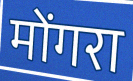
मोंगरा